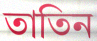
তাতিন